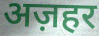
अज़हर